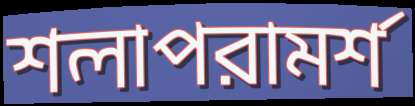
শলাপরামর্শ